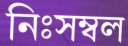
নিঃসম্বল